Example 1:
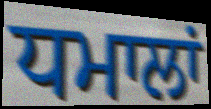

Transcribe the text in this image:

ਧਮਾਲਾਂ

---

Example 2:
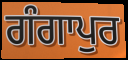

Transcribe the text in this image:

ਗੰਗਾਪੁਰ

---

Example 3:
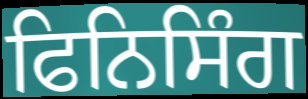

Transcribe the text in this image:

ਫਿਨਿਸਿੰਗ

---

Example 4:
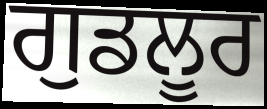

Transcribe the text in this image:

ਗੁਡਲੂਰ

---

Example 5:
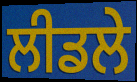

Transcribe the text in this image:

ਲੀਡਲੇ